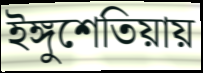
ইঙ্গুশেতিয়ায়